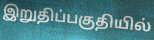
இறுதிப்பகுதியில்